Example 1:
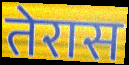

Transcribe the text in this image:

तेरास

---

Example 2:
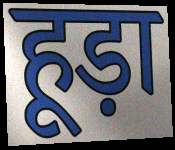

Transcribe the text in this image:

हूड़ा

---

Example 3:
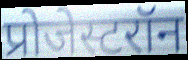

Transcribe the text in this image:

प्रोजेस्टरॉन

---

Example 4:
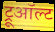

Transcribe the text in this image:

ट्रूऑल्ट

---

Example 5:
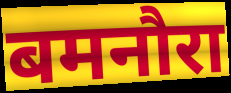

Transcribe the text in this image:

बमनौरा